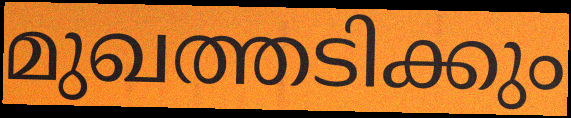
മുഖത്തടിക്കും